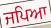
ਜਪਿਆ